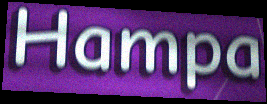
Hampa